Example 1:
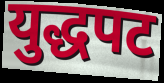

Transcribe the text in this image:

युद्धपट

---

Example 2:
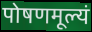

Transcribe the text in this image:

पोषणमूल्यं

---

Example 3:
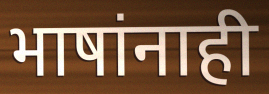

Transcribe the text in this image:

भाषांनाही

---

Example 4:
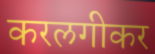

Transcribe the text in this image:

करलगीकर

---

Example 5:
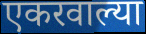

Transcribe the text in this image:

एकरवाल्या